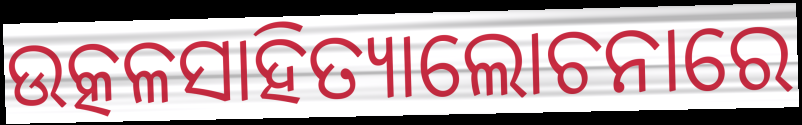
ଉତ୍କଳସାହିତ୍ୟାଲୋଚନାରେ